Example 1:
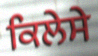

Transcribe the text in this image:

ਕਿਲੇਸੇ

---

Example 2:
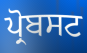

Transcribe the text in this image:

ਪ੍ਰੋਬਸਟ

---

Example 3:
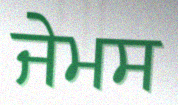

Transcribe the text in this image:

ਜੇਮਸ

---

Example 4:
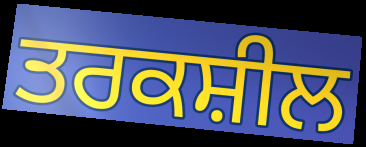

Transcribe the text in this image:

ਤਰਕਸ਼ੀਲ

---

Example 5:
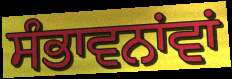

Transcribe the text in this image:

ਸੰਭਾਵਨਾਂਵਾਂ